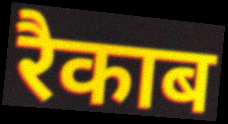
रैकाब